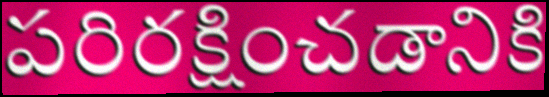
పరిరక్షించడానికి